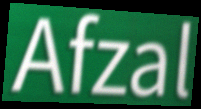
Afzal